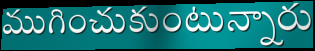
ముగించుకుంటున్నారు